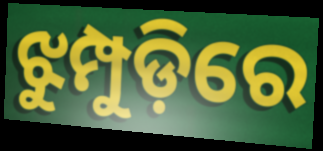
ଝୁମ୍ପୁଡ଼ିରେ